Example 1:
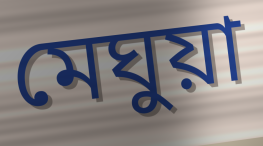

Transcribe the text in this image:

মেঘুয়া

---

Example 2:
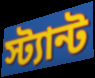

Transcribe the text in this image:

স্ট্যান্ট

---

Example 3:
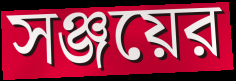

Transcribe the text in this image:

সঞ্জয়ের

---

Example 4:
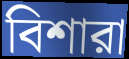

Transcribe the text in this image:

বিশারা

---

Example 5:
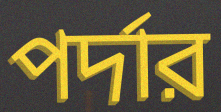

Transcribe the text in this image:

পর্দার